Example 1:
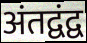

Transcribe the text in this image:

अंतद्वंद्व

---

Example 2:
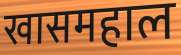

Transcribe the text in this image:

खासमहाल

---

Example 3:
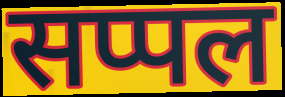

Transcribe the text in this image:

सप्पल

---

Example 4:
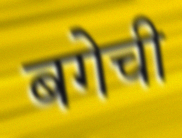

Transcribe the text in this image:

बगेची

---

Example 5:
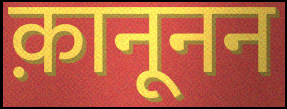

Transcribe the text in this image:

क़ानूनन